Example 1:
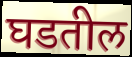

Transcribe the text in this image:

घडतील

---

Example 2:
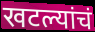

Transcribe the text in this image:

खटल्यांचं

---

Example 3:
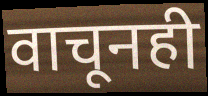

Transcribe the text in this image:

वाचूनही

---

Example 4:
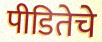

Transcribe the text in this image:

पीडितेचे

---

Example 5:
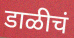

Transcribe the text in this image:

डाळीचं